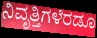
ನಿವೃತ್ತಿಗಳೆರಡೂ